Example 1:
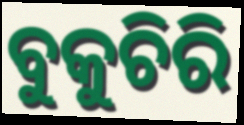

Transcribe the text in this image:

ବୁକୁଚିରି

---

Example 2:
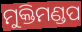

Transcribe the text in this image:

ମୁକ୍ତିମଣ୍ଡପ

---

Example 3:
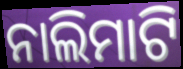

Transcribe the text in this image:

ନାଲିମାଟି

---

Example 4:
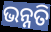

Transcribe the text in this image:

ଭନ୍ନତି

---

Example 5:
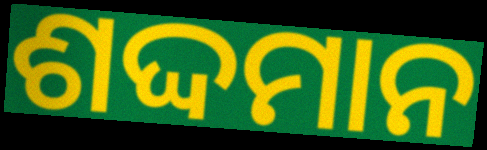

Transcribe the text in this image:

ଶଦ୍ଦମାନ